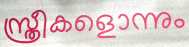
സ്ത്രീകളൊന്നും